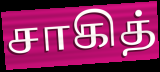
சாகித்